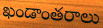
ఖండాంతరాలు